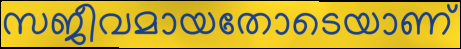
സജീവമായതോടെയാണ്